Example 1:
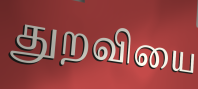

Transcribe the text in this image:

துறவியை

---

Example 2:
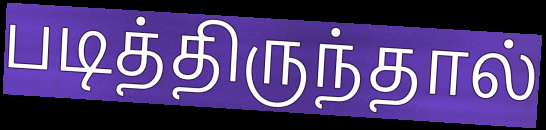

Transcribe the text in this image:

படித்திருந்தால்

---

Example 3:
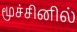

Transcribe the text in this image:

மூச்சினில்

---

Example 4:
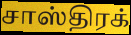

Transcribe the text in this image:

சாஸ்திரக்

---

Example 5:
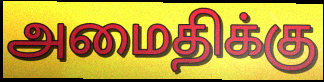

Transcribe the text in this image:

அமைதிக்கு